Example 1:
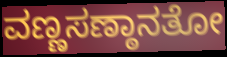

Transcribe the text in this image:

ವಣ್ಣಸಣ್ಠಾನತೋ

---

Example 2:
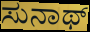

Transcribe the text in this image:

ಸುನಾಥ್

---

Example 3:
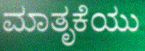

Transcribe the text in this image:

ಮಾತೃಕೆಯು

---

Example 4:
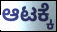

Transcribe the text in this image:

ಆಟಕ್ಕೆ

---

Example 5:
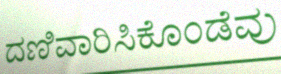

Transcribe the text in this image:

ದಣಿವಾರಿಸಿಕೊಂಡೆವು